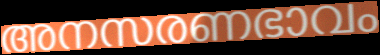
അനസരണഭാവം